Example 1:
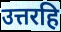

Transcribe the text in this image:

उत्तरहि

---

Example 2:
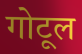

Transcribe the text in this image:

गोटूल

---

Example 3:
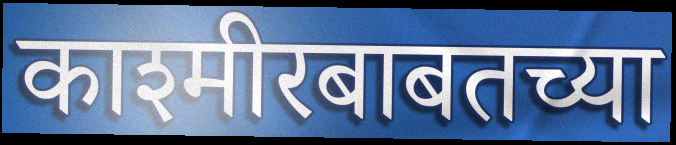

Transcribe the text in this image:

काश्मीरबाबतच्या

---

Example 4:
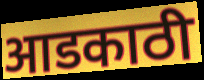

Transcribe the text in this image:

आडकाठी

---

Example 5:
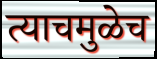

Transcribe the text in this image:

त्याचमुळेच